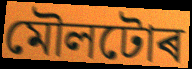
মৌলটোৰ